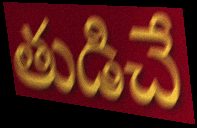
తుడిచే